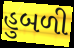
હુબળી